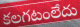
కలగటంలేదు